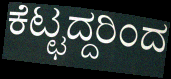
ಕೆಟ್ಟದ್ದರಿಂದ